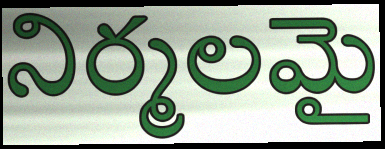
నిర్మలమై